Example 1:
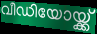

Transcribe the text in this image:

വീഡിയോയ്ക്ക്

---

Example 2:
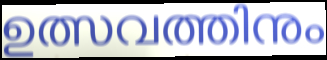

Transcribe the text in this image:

ഉത്സവത്തിനും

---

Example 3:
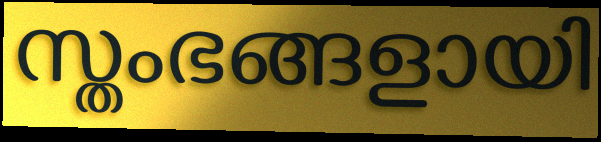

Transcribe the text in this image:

സ്തംഭങ്ങളായി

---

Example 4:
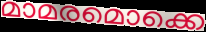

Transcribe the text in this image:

മാമരമൊക്കെ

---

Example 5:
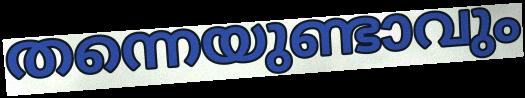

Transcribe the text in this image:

തന്നെയുണ്ടാവും